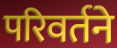
परिवर्तने